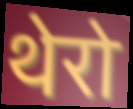
थेरो